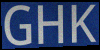
GHK